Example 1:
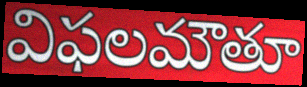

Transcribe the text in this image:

విఫలమౌతూ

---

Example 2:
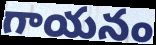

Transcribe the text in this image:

గాయనం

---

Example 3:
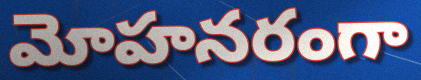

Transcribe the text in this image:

మోహనరంగా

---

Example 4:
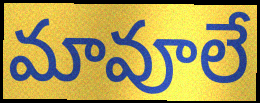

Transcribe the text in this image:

మావూలే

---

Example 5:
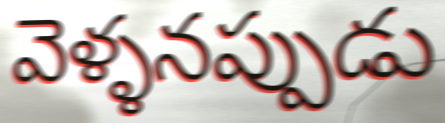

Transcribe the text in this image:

వెళ్ళనప్పుడు